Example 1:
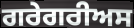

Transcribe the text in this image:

ਗਰੇਗਰੀਅਸ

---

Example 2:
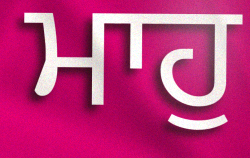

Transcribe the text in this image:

ਮਾਹੁ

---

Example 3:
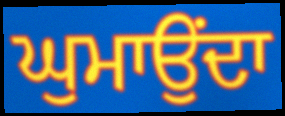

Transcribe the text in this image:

ਘੁਮਾਉਂਦਾ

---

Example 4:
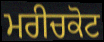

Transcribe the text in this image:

ਮਰੀਚਕੋਟ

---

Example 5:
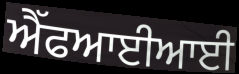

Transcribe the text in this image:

ਐੱਫਆਈਆਈ